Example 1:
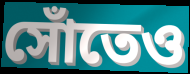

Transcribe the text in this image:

সোঁতেও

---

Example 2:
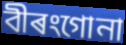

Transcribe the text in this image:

বীৰংগোনা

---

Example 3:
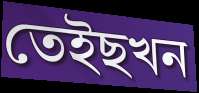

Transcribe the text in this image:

তেইছখন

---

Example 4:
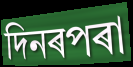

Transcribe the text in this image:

দিনৰপৰা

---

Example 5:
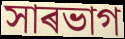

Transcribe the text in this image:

সাৰভাগ